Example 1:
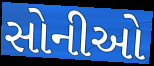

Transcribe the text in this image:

સોનીઓ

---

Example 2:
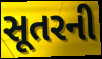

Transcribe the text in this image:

સૂતરની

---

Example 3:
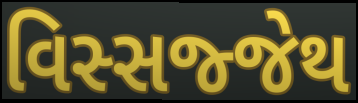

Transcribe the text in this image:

વિસ્સજ્જેથ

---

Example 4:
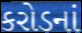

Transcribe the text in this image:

કરોડનાં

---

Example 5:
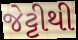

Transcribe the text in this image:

જેટ્ટીથી